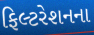
ફિલ્ટરેશનના